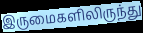
இருமைகளிலிருந்து